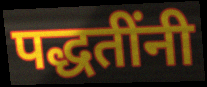
पद्धतींनी